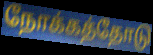
நோக்கத்தோடு